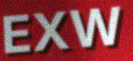
EXW